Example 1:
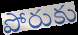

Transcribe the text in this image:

పోరుకు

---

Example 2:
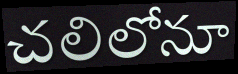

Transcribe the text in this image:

చలిలోనూ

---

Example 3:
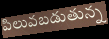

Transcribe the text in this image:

పిలువబడుతున్న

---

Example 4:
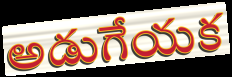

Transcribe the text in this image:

అడుగేయక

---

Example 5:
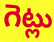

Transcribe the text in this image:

గెట్లు